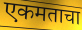
एकमताचा